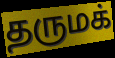
தருமக்